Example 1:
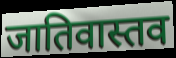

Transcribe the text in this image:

जातिवास्तव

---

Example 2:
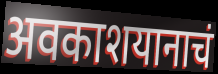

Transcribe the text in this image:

अवकाशयानाचं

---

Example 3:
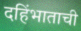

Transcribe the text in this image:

दहिंभाताची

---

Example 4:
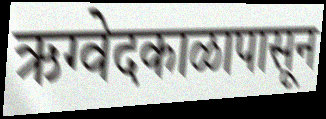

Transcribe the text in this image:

ऋग्वेदकाळापासून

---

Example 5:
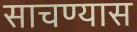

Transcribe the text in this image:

साचण्यास